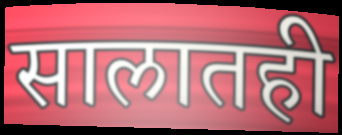
सालातही